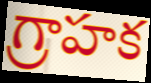
గ్రాహక